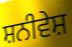
ਸ਼ਨੀਵੇਸ਼